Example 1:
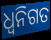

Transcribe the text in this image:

ଧ୍ଵନିଗତ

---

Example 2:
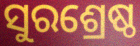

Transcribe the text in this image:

ସୁରଶ୍ରେଷ୍ଠ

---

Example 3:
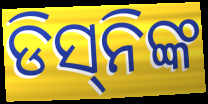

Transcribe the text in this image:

ଡିସ୍‌ନିଙ୍କ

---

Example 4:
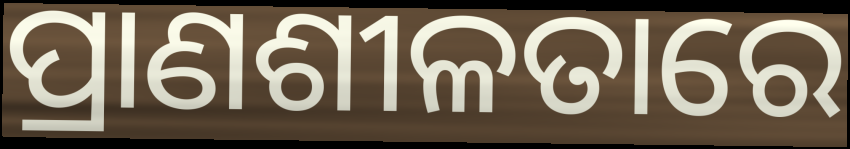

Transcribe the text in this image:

ପ୍ରାଣଶୀଳତାରେ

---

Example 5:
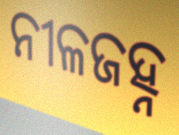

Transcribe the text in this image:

ନୀଳଜହ୍ନ